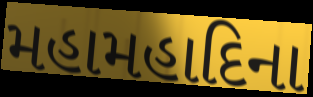
મહામહાદિના